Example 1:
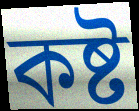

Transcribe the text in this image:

কষ্ট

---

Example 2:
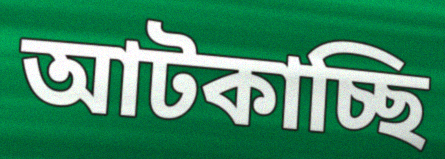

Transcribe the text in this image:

আটকাচ্ছি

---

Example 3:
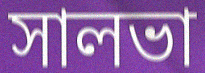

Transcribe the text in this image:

সালভা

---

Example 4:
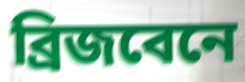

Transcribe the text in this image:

ব্রিজবেনে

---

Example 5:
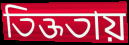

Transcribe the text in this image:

তিক্ততায়